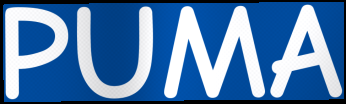
PUMA